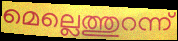
മെല്ലെത്തുറന്ന്